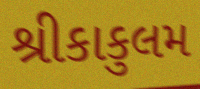
શ્રીકાકુલમ